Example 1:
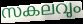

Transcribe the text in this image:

സകലവും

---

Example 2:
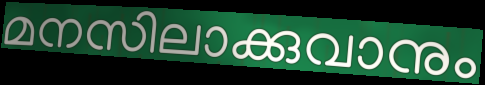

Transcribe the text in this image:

മനസിലാക്കുവാനും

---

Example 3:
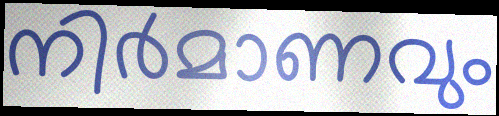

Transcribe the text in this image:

നിർമാണവും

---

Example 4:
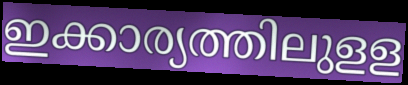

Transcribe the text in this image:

ഇക്കാര്യത്തിലുളള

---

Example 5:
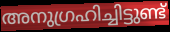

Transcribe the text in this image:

അനുഗ്രഹിച്ചിട്ടുണ്ട്